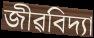
জীৱবিদ্যা